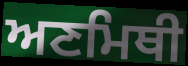
ਅਣਮਿਥੀ